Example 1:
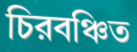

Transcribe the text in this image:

চিরবঞ্চিত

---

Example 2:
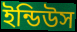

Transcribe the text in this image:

ইন্ডিউস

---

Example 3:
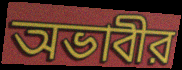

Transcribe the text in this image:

অভাবীর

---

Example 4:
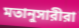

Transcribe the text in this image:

মতানুসারীরা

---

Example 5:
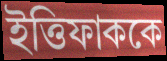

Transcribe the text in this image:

ইত্তিফাককে